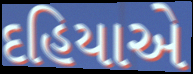
દહિયાએ